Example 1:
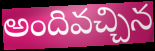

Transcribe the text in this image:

అందివచ్చిన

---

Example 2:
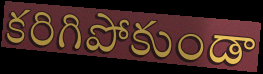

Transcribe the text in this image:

కరిగిపోకుండా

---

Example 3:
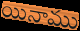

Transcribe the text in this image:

యినాము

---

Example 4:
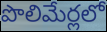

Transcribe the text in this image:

పొలిమేర్లలో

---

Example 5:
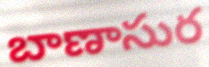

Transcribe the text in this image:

బాణాసుర